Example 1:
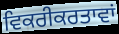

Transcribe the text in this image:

ਵਿਕਰੀਕਰਤਾਵਾਂ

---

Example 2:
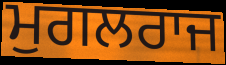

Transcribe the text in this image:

ਮੁਗਲਰਾਜ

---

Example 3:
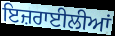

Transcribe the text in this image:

ਇਜ਼ਰਾਈਲੀਆਂ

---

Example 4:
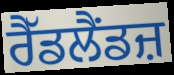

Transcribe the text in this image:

ਰੈੱਡਲੈਂਡਜ਼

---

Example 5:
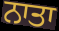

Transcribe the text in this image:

ਨਾਤਾ